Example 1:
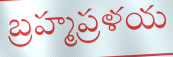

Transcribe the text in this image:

బ్రహ్మప్రళయ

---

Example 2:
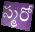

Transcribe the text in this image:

స్మరో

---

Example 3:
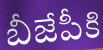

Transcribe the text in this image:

బీజేపీకి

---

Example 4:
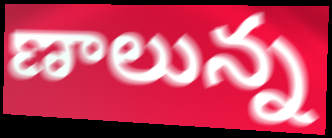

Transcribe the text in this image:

ణాలున్న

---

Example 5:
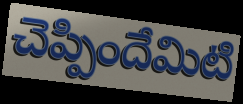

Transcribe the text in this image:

చెప్పిందేమిటి